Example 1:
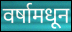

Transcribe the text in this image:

वर्षामधून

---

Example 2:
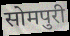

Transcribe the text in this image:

सोमपुरी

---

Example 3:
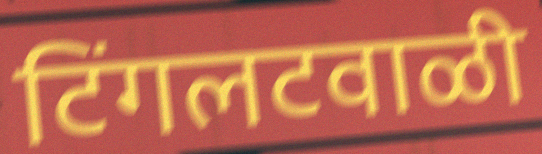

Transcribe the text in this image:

टिंगलटवाळी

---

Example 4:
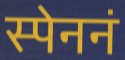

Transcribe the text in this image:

स्पेननं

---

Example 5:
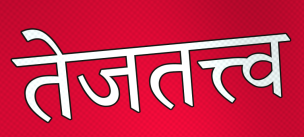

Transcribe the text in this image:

तेजतत्त्व